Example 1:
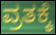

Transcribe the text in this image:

ವ್ರತಕ್ಕೆ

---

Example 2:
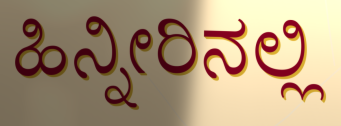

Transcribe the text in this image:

ಹಿನ್ನೀರಿನಲ್ಲಿ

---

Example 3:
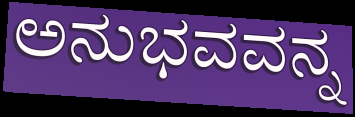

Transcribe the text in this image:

ಅನುಭವವನ್ನ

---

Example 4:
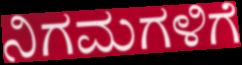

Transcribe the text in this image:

ನಿಗಮಗಳಿಗೆ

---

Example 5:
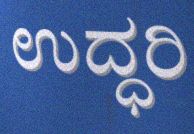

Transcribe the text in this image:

ಉದ್ಧರಿ